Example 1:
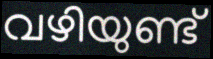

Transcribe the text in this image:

വഴിയുണ്ട്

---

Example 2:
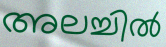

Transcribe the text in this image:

അലച്ചിൽ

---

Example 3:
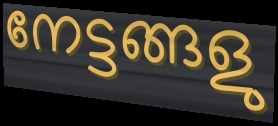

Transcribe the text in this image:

നേട്ടങ്ങളു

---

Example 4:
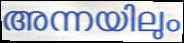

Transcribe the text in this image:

അന്നയിലും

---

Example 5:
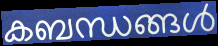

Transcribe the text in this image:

കബന്ധങ്ങൾ